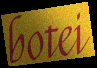
botei